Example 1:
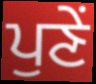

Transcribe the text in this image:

ਪੁਣੇਂ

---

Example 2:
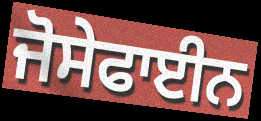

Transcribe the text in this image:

ਜੋਸੇਫਾਈਨ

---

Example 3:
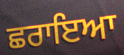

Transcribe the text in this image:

ਛਰਾਇਆ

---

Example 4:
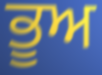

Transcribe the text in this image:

ਭੂਅ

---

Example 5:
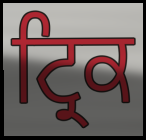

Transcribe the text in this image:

ਟ੍ਰਿਕ